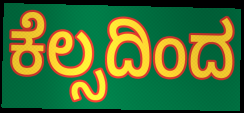
ಕೆಲ್ಸದಿಂದ